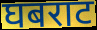
घबराट